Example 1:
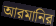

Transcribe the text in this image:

আরমানির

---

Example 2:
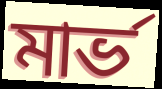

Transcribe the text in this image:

মার্ভ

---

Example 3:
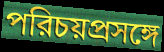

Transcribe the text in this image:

পরিচয়প্রসঙ্গে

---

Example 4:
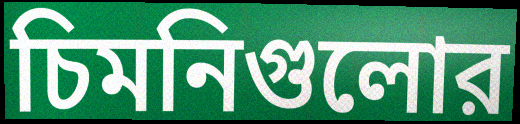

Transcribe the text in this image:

চিমনিগুলোর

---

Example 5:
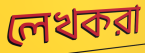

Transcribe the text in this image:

লেখকরা